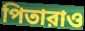
পিতারাও